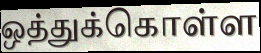
ஒத்துக்கொள்ள